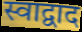
स्वाद्वाद